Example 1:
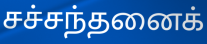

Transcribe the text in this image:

சச்சந்தனைக்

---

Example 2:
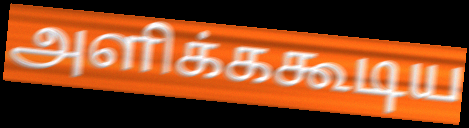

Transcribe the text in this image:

அளிக்ககூடிய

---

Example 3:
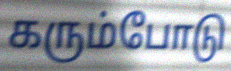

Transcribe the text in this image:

கரும்போடு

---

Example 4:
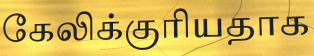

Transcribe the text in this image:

கேலிக்குரியதாக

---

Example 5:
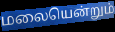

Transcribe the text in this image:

மலையென்றும்